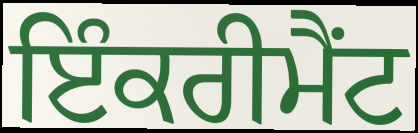
ਇੰਕਰੀਮੈਂਟ